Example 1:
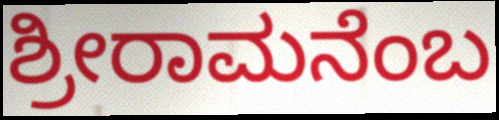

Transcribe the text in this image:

ಶ್ರೀರಾಮನೆಂಬ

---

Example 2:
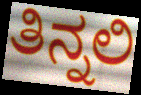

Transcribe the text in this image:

ತಿನ್ನಲಿ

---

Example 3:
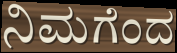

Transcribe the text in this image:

ನಿಮಗೆಂದ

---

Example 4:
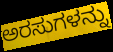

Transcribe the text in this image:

ಅರಸುಗಳನ್ನು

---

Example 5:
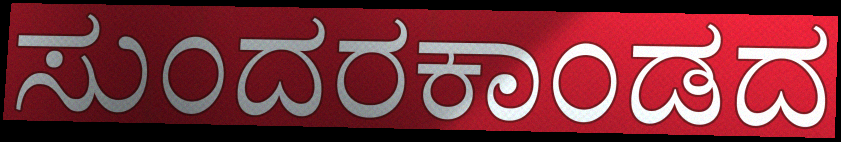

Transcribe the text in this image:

ಸುಂದರಕಾಂಡದ